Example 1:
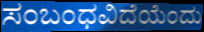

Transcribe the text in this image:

ಸಂಬಂಧವಿದೆಯೆಂದು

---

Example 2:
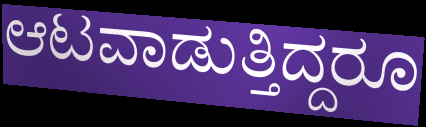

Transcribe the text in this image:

ಆಟವಾಡುತ್ತಿದ್ದರೂ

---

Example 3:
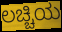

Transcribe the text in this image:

ಲಚ್ಚಿಯ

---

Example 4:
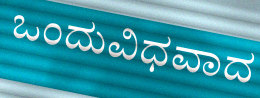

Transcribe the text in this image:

ಒಂದುವಿಧವಾದ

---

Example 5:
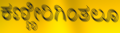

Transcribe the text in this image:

ಕಣ್ಣೀರಿಗಿಂತಲೂ